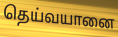
தெய்வயானை